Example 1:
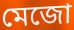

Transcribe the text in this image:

মেজো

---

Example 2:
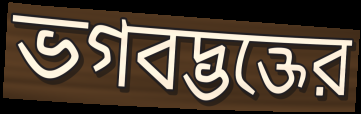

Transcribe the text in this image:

ভগবদ্ভক্তের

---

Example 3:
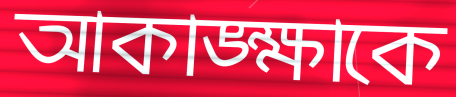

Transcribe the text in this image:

আকাঙ্ক্ষাকে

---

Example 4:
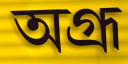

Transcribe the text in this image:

অগ্রূ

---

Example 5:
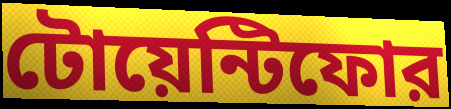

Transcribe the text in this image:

টোয়েন্টিফোর